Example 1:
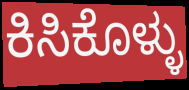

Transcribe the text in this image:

ಕಿಸಿಕೊಳ್ಳು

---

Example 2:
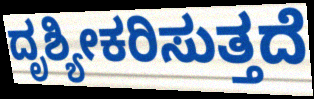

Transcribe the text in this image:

ದೃಶ್ಯೀಕರಿಸುತ್ತದೆ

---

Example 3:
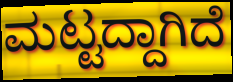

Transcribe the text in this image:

ಮಟ್ಟದ್ದಾಗಿದೆ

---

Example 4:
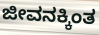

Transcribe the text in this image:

ಜೀವನಕ್ಕಿಂತ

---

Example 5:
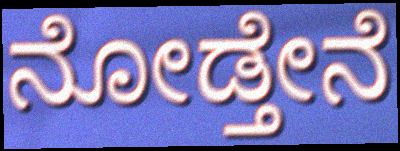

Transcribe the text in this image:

ನೋಡ್ತೇನೆ